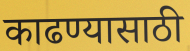
काढण्यासाठी